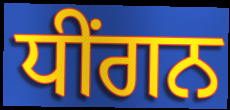
ਧੀਂਗਨ